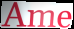
Ame